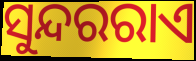
ସୁନ୍ଦରରାଏ